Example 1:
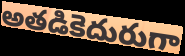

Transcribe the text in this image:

అతడికెదురుగా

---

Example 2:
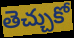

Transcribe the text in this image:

తెచ్చుకో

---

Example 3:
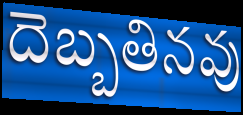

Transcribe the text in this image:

దెబ్బతినవు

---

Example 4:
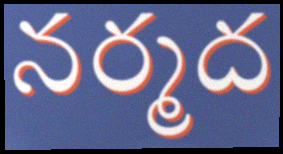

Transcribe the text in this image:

నర్మద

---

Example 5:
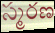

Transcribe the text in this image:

స్మరణ